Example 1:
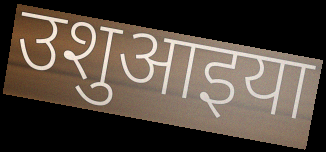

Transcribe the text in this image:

उशुआइया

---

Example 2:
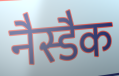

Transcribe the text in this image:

नैस्डैक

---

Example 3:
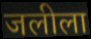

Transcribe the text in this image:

जलीला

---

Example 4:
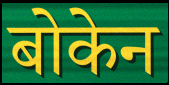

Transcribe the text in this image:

बोकेन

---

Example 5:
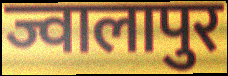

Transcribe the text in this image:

ज्वालापुर